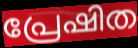
പ്രേഷിത